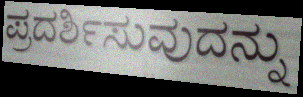
ಪ್ರದರ್ಶಿಸುವುದನ್ನು